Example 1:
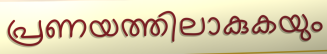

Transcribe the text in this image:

പ്രണയത്തിലാകുകയും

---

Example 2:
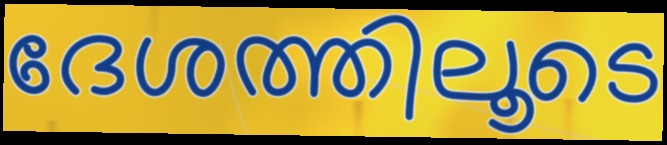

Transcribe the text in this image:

ദേശത്തിലൂടെ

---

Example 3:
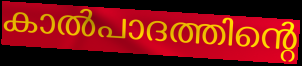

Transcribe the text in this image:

കാൽപാദത്തിന്റെ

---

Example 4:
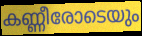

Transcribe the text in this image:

കണ്ണീരോടെയും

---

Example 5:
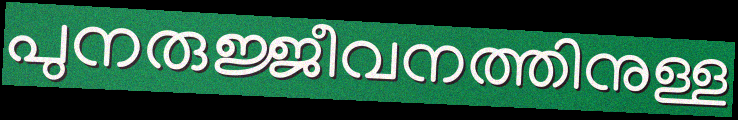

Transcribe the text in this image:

പുനരുജ്ജീവനത്തിനുള്ള